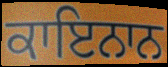
ਕਾਇਨਾਨ